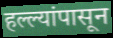
हल्ल्यांपासून